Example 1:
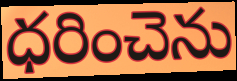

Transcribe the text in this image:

ధరించెను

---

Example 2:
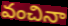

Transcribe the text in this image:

వంచినా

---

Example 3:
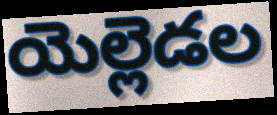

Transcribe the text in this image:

యెల్లెడల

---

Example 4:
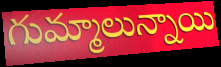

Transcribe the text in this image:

గుమ్మాలున్నాయి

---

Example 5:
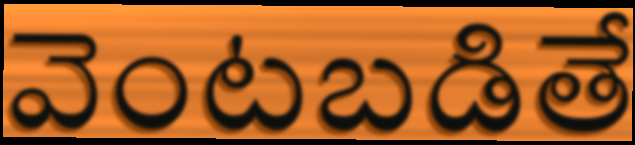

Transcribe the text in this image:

వెంటబడితే